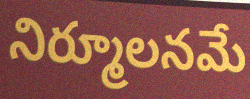
నిర్మూలనమే